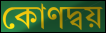
কোণদ্বয়